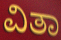
ವಿತಾ